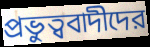
প্রভুত্ববাদীদের